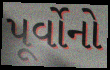
પૂર્વોનો